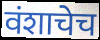
वंशाचेच